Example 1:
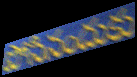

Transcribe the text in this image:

పోసినందుకు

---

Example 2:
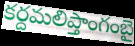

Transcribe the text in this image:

కర్దమలిప్తాంగంబై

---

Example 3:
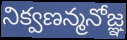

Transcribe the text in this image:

నిక్వణన్మనోజ్ఞ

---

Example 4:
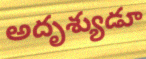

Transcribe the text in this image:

అదృశ్యుడూ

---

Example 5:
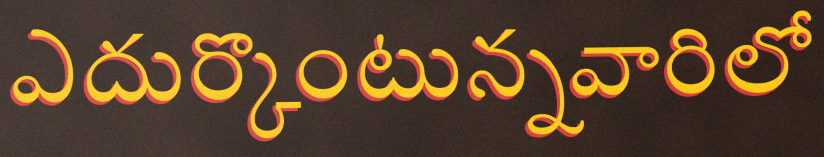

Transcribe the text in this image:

ఎదుర్కొంటున్నవారిలో